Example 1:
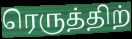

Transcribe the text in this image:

ரெருத்திற்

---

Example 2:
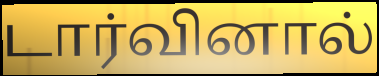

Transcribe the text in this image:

டார்வினால்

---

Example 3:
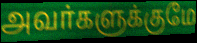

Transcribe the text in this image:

அவர்களுக்குமே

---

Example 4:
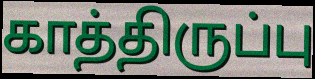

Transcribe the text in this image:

காத்திருப்பு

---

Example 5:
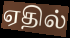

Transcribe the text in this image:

ஏதில்